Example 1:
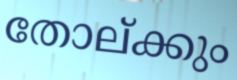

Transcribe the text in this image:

തോല്ക്കും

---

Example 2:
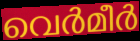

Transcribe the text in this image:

വെർമീർ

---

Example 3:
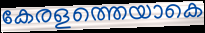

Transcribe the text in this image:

കേരളത്തെയാകെ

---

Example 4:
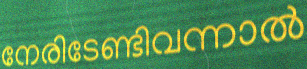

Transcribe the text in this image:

നേരിടേണ്ടിവന്നാൽ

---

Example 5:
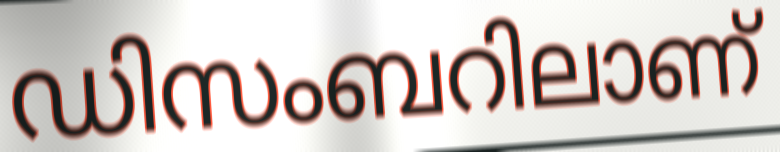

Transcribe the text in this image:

ഡിസംബറിലാണ്